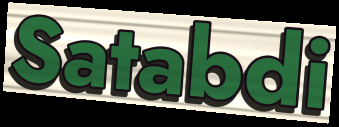
Satabdi